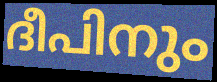
ദീപിനും